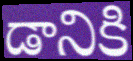
డానికి